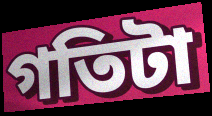
গতিটা